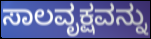
ಸಾಲವೃಕ್ಷವನ್ನು